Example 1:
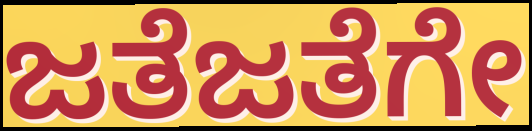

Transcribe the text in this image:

ಜತೆಜತೆಗೇ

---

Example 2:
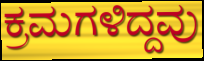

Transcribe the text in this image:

ಕ್ರಮಗಳಿದ್ದವು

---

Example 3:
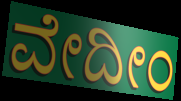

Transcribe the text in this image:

ವೇದೀಂ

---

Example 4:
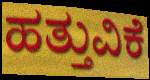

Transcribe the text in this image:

ಹತ್ತುವಿಕೆ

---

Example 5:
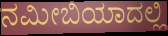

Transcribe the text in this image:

ನಮೀಬಿಯಾದಲ್ಲಿ